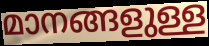
മാനങ്ങളുള്ള